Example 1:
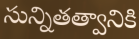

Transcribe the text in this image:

సున్నితత్వానికి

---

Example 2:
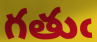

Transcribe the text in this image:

గతుఁ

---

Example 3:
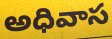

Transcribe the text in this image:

అధివాస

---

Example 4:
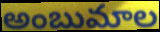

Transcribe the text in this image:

అంబుమాల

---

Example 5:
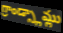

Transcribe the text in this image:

గ్రాండ్స్లామ్లు